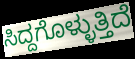
ಸಿದ್ದಗೊಳ್ಳುತ್ತಿದೆ